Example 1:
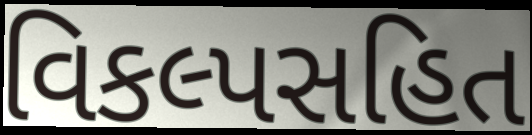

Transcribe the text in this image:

વિકલ્પસહિત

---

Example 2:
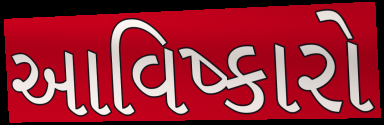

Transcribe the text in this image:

આવિષ્કારો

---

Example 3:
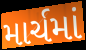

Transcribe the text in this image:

માર્ચમાં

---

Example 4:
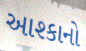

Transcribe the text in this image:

આશ્કાનો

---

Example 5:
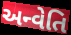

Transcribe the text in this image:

અન્વેતિ